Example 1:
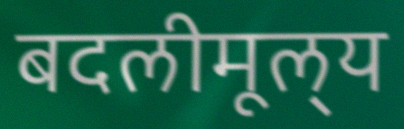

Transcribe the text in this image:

बदलीमूल्य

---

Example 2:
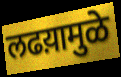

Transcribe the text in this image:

लढय़ामुळे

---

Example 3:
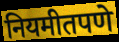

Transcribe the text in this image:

नियमीतपणे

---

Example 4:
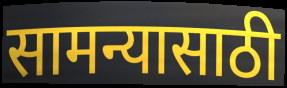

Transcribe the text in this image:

सामन्यासाठी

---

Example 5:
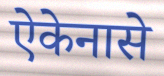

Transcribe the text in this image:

ऐकेनासे